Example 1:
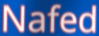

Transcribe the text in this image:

Nafed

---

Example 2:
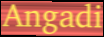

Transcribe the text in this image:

Angadi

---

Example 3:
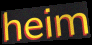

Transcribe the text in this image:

heim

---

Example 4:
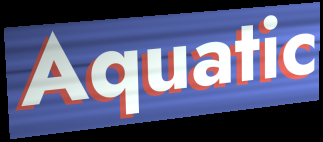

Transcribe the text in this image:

Aquatic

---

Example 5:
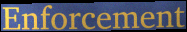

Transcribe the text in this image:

Enforcement